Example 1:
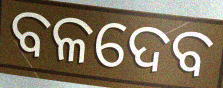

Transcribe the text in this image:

ବଳଦେବ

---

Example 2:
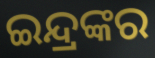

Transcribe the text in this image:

ଇନ୍ଦ୍ରଙ୍କର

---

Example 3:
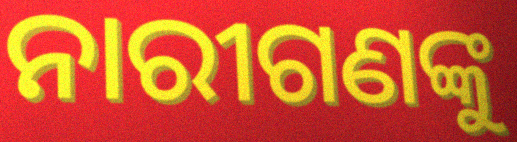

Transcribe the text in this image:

ନାରୀଗଣଙ୍କୁ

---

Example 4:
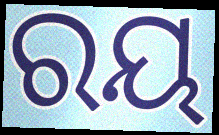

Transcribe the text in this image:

ରୟ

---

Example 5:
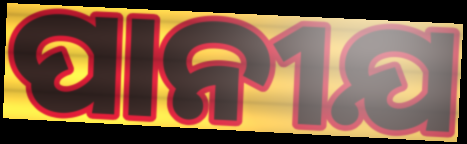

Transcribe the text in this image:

ପାନୀଯ